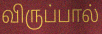
விருப்பால்